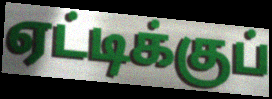
ஏட்டிக்குப்